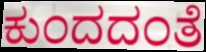
ಕುಂದದಂತೆ